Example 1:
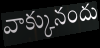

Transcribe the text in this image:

వాక్కునందు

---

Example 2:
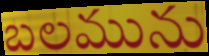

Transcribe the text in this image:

బలమును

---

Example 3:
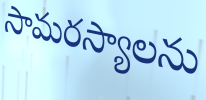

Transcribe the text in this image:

సామరస్యాలను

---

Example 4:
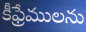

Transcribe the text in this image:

కీఫ్రేములను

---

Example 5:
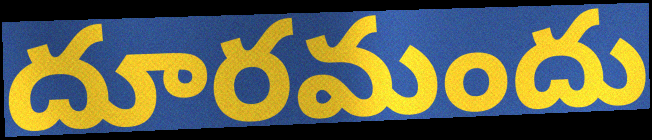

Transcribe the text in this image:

దూరమందు